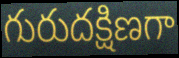
గురుదక్షిణగా